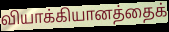
வியாக்கியானத்தைக்